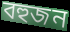
বহুজন